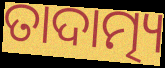
ତାଦାତ୍ମ୍ୟ